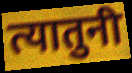
त्यातुनी